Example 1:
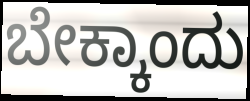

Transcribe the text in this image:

ಬೇಕ್ಕಾಂದು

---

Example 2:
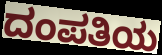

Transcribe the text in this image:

ದಂಪತಿಯ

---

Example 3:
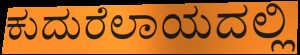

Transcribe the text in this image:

ಕುದುರೆಲಾಯದಲ್ಲಿ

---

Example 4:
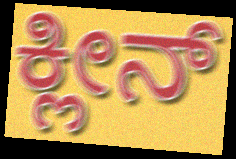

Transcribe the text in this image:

ಕ್ಲೀನ್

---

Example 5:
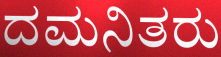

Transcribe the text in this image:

ದಮನಿತರು